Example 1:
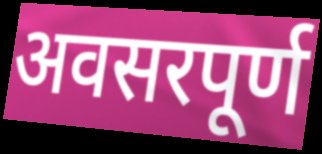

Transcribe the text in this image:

अवसरपूर्ण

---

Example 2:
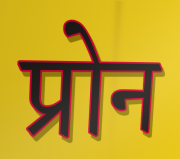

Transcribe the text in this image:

प्रोन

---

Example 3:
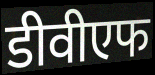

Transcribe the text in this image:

डीवीएफ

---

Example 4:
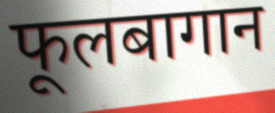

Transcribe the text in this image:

फूलबागान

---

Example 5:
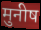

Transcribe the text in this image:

मुनीष